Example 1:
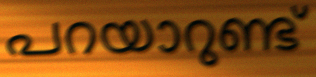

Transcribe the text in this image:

പറയാറുണ്ട്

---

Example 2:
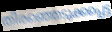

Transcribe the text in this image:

തിരഞ്ഞെടുക്കപ്പെട്ട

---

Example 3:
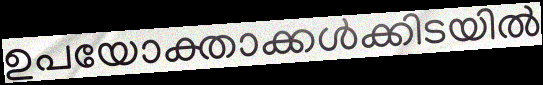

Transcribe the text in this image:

ഉപയോക്താക്കൾക്കിടയിൽ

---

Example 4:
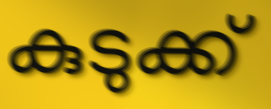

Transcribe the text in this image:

കുടുക്ക്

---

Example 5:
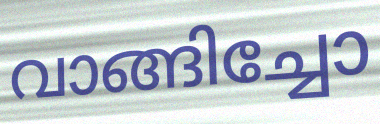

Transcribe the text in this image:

വാങ്ങിച്ചോ